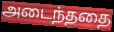
அடைந்ததை